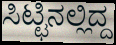
ಸಿಟ್ಟಿನಲ್ಲಿದ್ದ